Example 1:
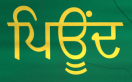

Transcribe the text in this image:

ਪਿਊਂਦ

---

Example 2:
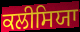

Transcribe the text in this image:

ਕਲੀਸਿਯਾ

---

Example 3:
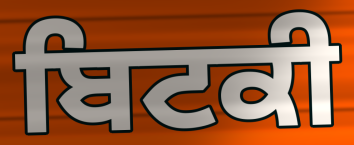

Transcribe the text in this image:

ਬਿਟਕੀ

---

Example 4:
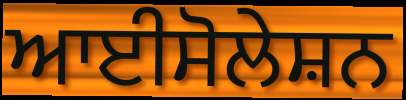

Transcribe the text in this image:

ਆਈਸੋਲੇਸ਼ਨ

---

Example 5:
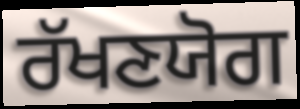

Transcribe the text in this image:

ਰੱਖਣਯੋਗ